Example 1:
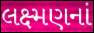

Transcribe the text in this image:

લક્ષ્મણનાં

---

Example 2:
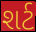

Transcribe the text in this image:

શર્ટ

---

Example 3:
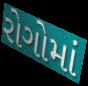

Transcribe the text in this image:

રોગોમાં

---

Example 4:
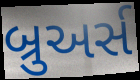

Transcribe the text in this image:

બ્રુઅર્સ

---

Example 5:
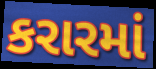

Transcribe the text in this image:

કરારમાં